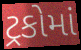
ટ્રકોમાં